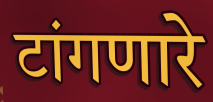
टांगणारे